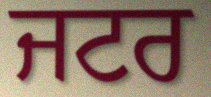
ਜਟਰ